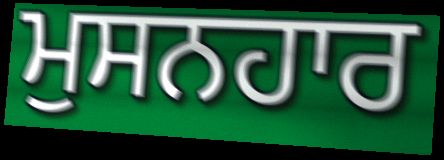
ਮੁਸਨਹਾਰ